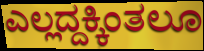
ಎಲ್ಲದ್ದಕ್ಕಿಂತಲೂ